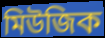
মিউজিক